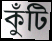
কুঁটি